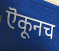
ऎकूनच